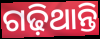
ଗଢ଼ିଥାନ୍ତି